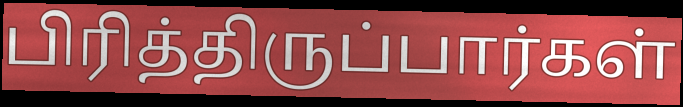
பிரித்திருப்பார்கள்